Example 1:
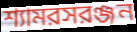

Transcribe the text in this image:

শ্যামরসরঞ্জন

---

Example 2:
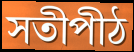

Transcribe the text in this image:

সতীপীঠ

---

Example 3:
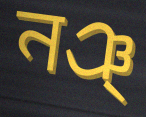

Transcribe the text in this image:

নঞ্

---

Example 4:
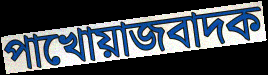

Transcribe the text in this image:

পাখোয়াজবাদক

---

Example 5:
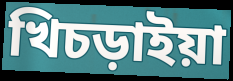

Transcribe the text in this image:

খিচড়াইয়া